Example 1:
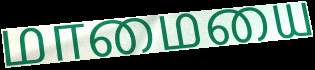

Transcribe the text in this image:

மாமையை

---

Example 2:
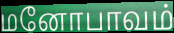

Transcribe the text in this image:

மனோபாவம்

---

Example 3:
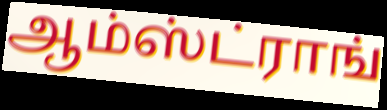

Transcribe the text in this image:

ஆம்ஸ்ட்ராங்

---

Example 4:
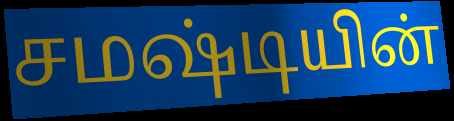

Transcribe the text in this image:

சமஷ்டியின்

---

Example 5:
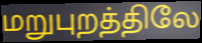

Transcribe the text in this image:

மறுபுறத்திலே